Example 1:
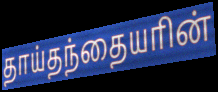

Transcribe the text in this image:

தாய்தந்தையரின்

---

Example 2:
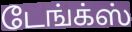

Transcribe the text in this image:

டேங்க்ஸ்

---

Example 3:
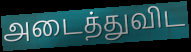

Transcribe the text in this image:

அடைத்துவிட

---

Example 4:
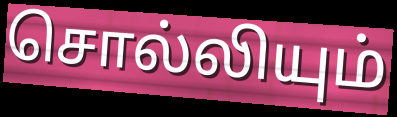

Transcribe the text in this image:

சொல்லியும்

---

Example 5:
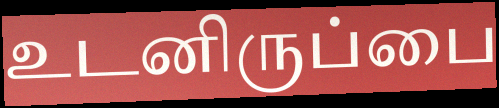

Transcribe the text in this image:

உடனிருப்பை